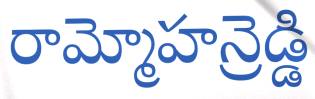
రామ్మోహన్రెడ్డి